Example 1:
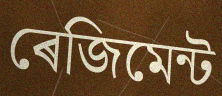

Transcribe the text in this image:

ৰেজিমেন্ট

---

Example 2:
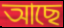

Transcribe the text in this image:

আছে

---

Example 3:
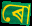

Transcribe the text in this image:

ৰো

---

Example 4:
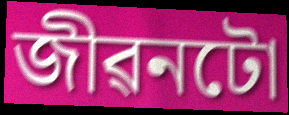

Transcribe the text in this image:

জীৱনটো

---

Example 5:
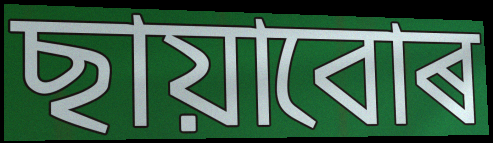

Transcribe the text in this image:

ছায়াবোৰ